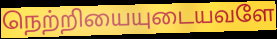
நெற்றியையுடையவளே